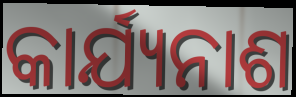
କାର୍ଯ୍ୟନାଶ